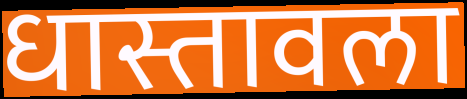
धास्तावला